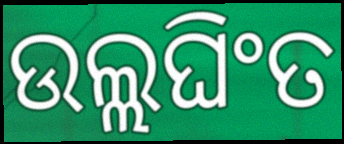
ଉଲ୍ଲଘିଂତ